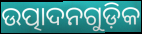
ଉତ୍ପାଦନଗୁଡ଼ିକ